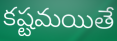
కష్టమయితే